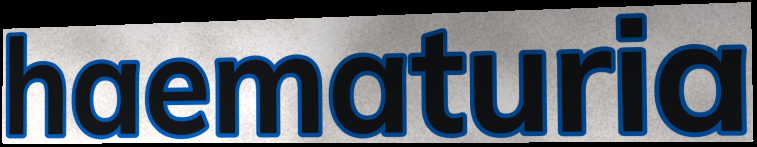
haematuria